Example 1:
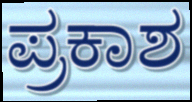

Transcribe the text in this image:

ಪ್ರಕಾಶ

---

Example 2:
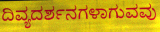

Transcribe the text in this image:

ದಿವ್ಯದರ್ಶನಗಳಾಗುವವು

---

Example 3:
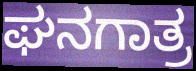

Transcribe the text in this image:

ಘನಗಾತ್ರ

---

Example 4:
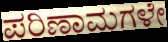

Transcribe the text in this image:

ಪರಿಣಾಮಗಳೇ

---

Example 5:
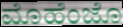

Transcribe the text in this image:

ಮೊಹೆಂಜೊ